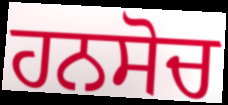
ਹਨਸੋਚ